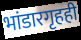
भांडारगृहही